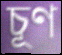
চূণ